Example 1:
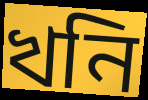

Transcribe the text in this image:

খনি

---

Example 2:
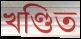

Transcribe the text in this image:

খণ্ডিত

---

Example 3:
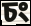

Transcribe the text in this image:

চং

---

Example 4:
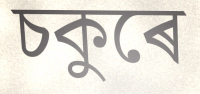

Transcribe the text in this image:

চকুৰে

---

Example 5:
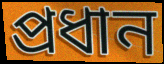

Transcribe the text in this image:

প্ৰধান